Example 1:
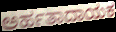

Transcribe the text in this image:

ಅರ್ಹತಾದಾಯಕ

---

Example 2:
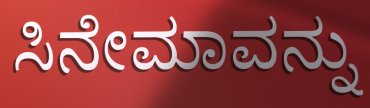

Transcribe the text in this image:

ಸಿನೇಮಾವನ್ನು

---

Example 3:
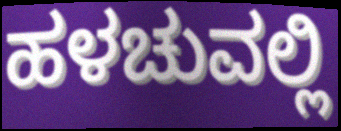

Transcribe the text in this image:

ಹಳಚುವಲ್ಲಿ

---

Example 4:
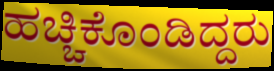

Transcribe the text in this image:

ಹಚ್ಚಿಕೊಂಡಿದ್ದರು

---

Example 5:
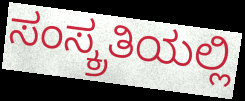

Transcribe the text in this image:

ಸಂಸ್ಕ್ರತಿಯಲ್ಲಿ